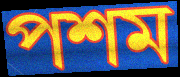
পশম